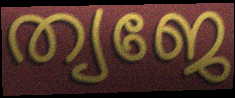
ത്യജേ